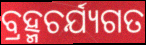
ବ୍ରହ୍ମଚର୍ଯ୍ୟଗତ